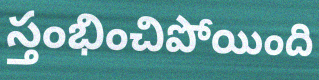
స్తంభించిపోయింది